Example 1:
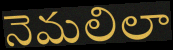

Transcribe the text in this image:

నెమలిలా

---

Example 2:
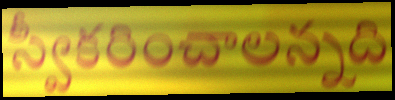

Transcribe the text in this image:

స్వీకరించాలన్నది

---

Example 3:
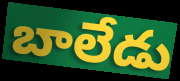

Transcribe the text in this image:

బాలేడు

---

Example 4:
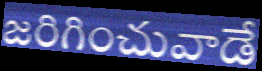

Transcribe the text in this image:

జరిగించువాడే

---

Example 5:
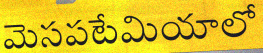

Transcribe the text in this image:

మెసపటేమియాలో